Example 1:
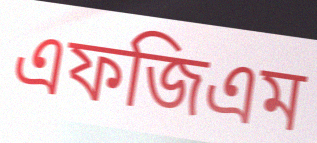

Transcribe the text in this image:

এফজিএম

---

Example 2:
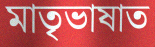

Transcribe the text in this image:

মাতৃভাষাত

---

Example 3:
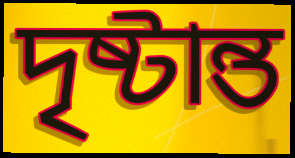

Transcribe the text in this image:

দৃষ্টান্ত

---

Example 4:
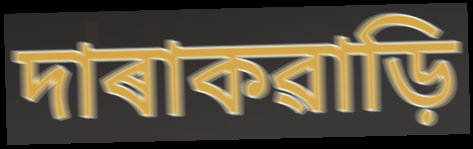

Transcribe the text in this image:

দাৰাকৱাড়ি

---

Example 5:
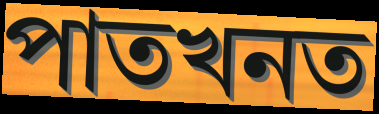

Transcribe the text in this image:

পাতখনত